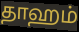
தாஹம்